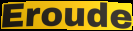
Eroude